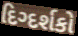
દિગ્દર્શકો